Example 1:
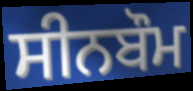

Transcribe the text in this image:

ਸੀਨਬੌਮ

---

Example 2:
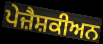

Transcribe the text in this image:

ਪੇਜ਼ੈਸ਼ਕੀਅਨ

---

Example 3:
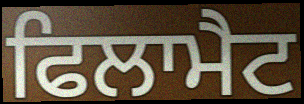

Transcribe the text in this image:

ਫਿਲਾਮੈਟ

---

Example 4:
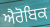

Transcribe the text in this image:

ਐਰੋਬਿਕ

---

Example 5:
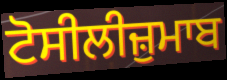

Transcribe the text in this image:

ਟੋਸੀਲੀਜ਼ੁਮਾਬ